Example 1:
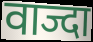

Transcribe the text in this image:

वाज्दा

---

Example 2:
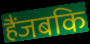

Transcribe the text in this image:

हैंजबकि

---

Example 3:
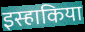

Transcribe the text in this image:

इस्हाकिया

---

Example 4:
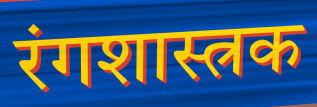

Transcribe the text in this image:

रंगशास्त्रक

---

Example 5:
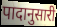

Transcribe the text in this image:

पादानुसारी